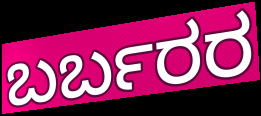
ಬರ್ಬರರ